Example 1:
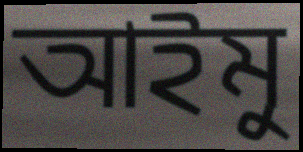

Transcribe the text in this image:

আইমু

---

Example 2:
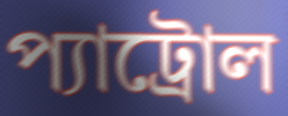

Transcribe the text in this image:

প্যাট্রোল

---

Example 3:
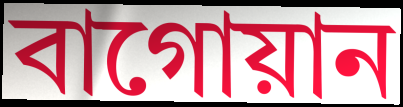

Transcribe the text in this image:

বাগোয়ান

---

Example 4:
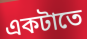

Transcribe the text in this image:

একটাতে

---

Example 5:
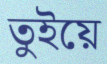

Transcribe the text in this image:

তুইয়ে